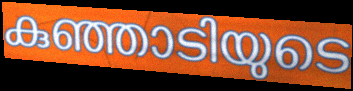
കുഞ്ഞാടിയുടെ